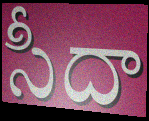
సీదా